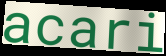
acari